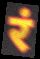
रं